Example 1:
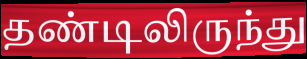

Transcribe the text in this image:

தண்டிலிருந்து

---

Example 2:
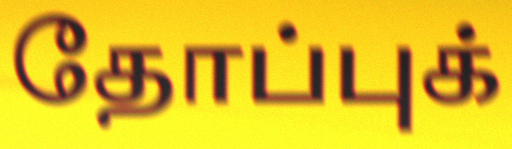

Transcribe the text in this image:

தோப்புக்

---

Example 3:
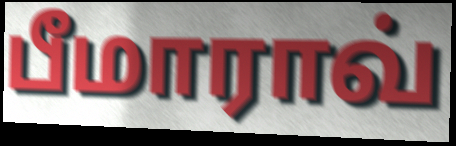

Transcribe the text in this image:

பீமாராவ்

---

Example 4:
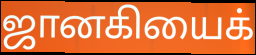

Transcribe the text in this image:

ஜானகியைக்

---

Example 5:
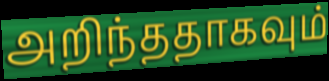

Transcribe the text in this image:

அறிந்ததாகவும்